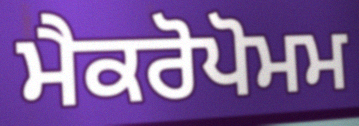
ਮੈਕਰੋਪੋਮਮ